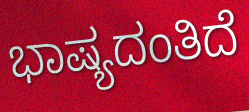
ಭಾಷ್ಯದಂತಿದೆ